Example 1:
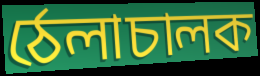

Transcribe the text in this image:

ঠেলাচালক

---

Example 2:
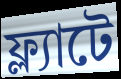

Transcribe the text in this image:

ফ্ল্যাটে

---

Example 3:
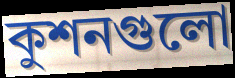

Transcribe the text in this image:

কুশনগুলো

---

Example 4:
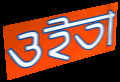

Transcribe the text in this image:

ওইতা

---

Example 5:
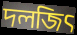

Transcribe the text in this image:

দলজিৎ